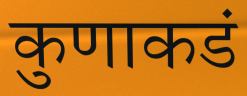
कुणाकडं